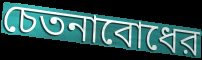
চেতনাবোধের